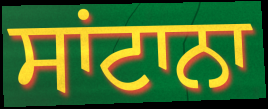
ਸਾਂਟਾਨਾ